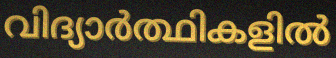
വിദ്യാർത്ഥികളിൽ